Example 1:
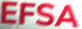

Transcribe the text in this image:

EFSA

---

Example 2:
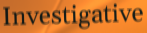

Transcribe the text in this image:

Investigative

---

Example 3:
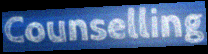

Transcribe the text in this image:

Counselling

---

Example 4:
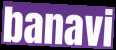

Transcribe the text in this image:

banavi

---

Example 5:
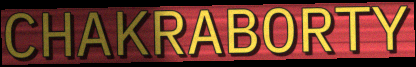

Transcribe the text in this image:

CHAKRABORTY